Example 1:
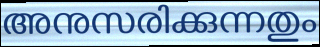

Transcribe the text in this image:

അനുസരിക്കുന്നതും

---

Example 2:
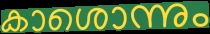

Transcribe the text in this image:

കാശൊന്നും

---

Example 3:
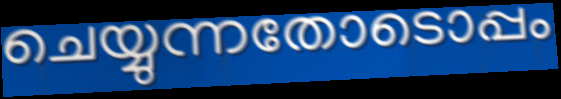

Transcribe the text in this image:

ചെയ്യുന്നതോടൊപ്പം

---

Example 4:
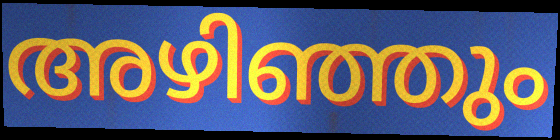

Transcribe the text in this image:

അഴിഞ്ഞും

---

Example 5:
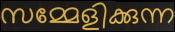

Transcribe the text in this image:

സമ്മേളിക്കുന്ന